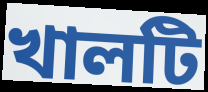
খালটি